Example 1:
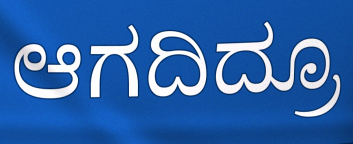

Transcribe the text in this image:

ಆಗದಿದ್ರೂ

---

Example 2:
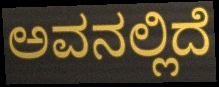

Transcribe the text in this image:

ಅವನಲ್ಲಿದೆ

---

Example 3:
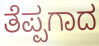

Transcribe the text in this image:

ತೆಪ್ಪಗಾದ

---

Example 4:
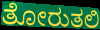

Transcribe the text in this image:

ತೋರುತಲಿ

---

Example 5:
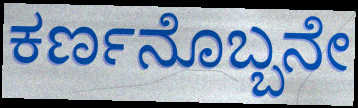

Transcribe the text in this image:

ಕರ್ಣನೊಬ್ಬನೇ